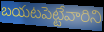
బయటపెట్టేవారిని